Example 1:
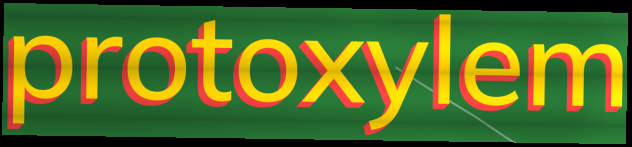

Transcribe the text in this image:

protoxylem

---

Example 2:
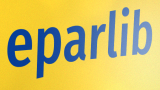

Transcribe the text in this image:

eparlib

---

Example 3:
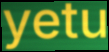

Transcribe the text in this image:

yetu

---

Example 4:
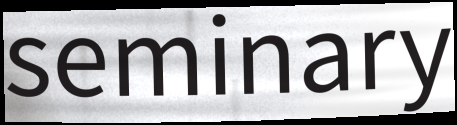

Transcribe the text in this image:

seminary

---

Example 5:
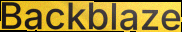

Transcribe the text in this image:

Backblaze